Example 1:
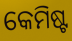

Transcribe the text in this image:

କେମିଷ୍ଟ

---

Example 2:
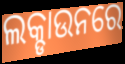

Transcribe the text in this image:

ଲକ୍ଡାଉନରେ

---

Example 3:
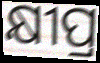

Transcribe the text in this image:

କ୍ଷୀପ୍ର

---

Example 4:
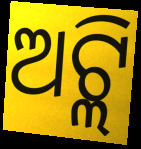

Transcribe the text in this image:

ଅଟ୍ଲି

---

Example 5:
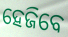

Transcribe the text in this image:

ହେଜିବେ